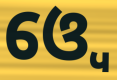
ଓ୍ବେ